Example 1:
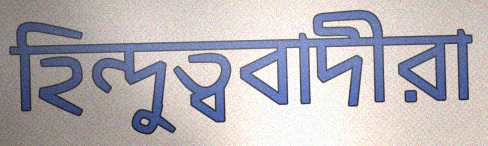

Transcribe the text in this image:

হিন্দুত্ববাদীরা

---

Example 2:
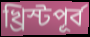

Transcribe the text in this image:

খ্রিস্টপূর্ব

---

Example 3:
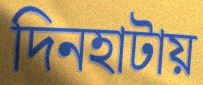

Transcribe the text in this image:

দিনহাটায়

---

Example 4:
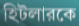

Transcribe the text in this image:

হিটলারকে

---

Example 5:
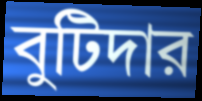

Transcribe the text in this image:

বুটিদার